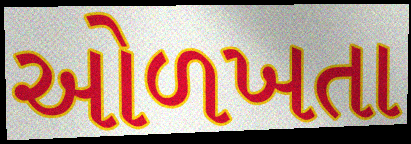
ઓળખતા